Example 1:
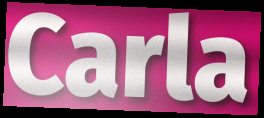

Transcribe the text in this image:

Carla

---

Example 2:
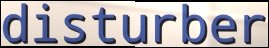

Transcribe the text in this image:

disturber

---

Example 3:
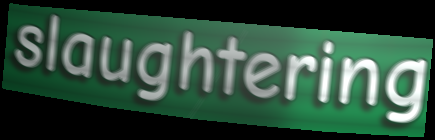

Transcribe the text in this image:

slaughtering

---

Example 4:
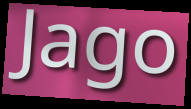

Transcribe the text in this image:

Jago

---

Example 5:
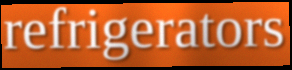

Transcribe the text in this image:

refrigerators